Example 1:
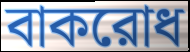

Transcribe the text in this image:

বাকরোধ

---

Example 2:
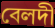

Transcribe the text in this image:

বেলদী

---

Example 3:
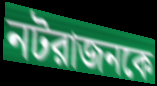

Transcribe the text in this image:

নটরাজনকে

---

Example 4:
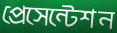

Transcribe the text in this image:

প্রেসেন্টেশন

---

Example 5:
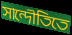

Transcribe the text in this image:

সান্দৌতিতে